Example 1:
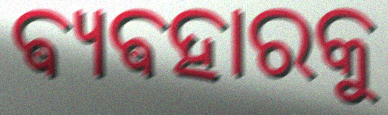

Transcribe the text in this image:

ଵ୍ୟଵହାରକୁ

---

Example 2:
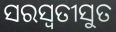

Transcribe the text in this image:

ସରସ୍ୱତୀସୁତ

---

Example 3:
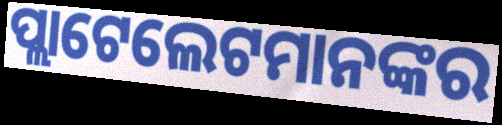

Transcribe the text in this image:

ପ୍ଲାଟେଲେଟମାନଙ୍କର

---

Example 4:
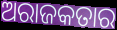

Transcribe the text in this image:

ଅରାଜକତାର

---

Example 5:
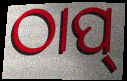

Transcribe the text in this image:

ଠାପ୍